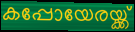
കപ്പോയേരയ്ക്ക്